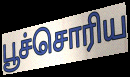
பூச்சொரிய